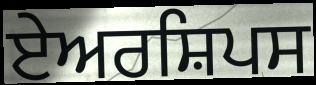
ਏਅਰਸ਼ਿਪਸ